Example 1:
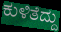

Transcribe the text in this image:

ಕುಳಿತೆದ್ದು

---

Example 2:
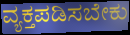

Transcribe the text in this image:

ವ್ಯಕ್ತಪಡಿಸಬೇಕು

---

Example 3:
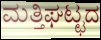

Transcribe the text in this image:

ಮತ್ತಿಘಟ್ಟದ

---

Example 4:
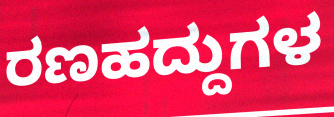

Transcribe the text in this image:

ರಣಹದ್ದುಗಳ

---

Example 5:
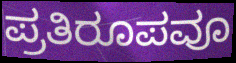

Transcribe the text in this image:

ಪ್ರತಿರೂಪವೂ